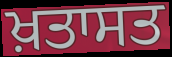
ਖ਼ਤਾਸਤ